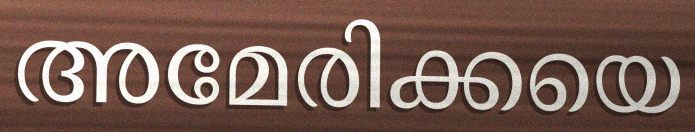
അമേരിക്കയെ